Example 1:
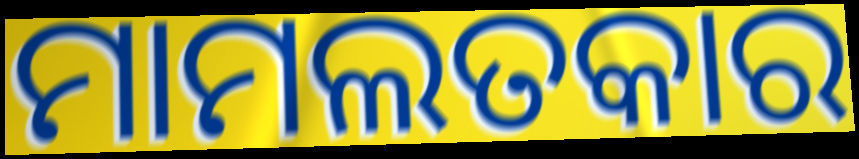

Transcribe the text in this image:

ମାମଲତକାର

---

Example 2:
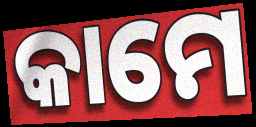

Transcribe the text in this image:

କାମେ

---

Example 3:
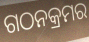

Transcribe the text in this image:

ଗଠନକ୍ରମର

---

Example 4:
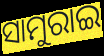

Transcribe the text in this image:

ସାମୁରାଇ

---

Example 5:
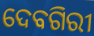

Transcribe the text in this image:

ଦେବଗିରୀ